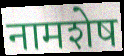
नामशेष